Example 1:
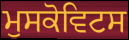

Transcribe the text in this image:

ਮੁਸਕੋਵਿਟਸ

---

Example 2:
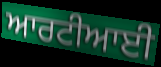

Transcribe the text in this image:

ਆਰਟੀਆਈ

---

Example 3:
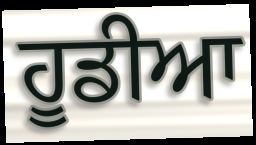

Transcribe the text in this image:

ਹੂਡੀਆ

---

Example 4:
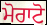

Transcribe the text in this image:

ਮੋਰਾਟੋ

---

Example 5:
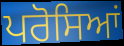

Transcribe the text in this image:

ਪਰੋਸਿਆਂ